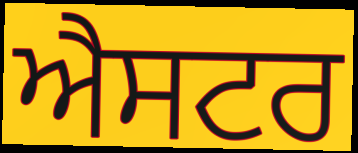
ਐਸਟਰ